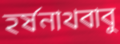
হর্ষনাথবাবু